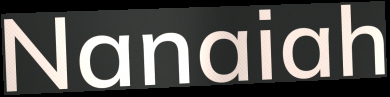
Nanaiah